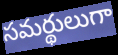
సమర్థులుగా